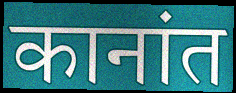
कानांत